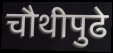
चौथीपुढे